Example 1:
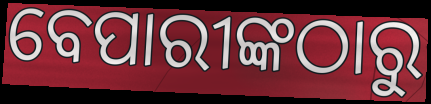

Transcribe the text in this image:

ବେପାରୀଙ୍କଠାରୁ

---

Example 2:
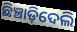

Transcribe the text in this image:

ଛିଞ୍ଚାଡ଼ିଦେଲି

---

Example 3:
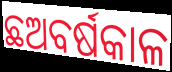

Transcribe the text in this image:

ଛଅବର୍ଷକାଳ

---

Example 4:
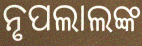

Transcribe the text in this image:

ନୃପଲାଲଙ୍କ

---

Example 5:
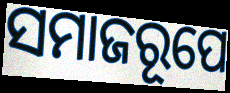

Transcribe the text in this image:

ସମାଜରୂପେ